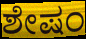
ಶೇಷಂ